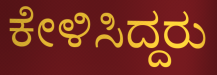
ಕೇಳಿಸಿದ್ದರು